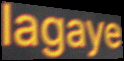
lagaye